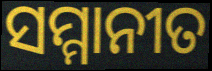
ସମ୍ମାନୀତ